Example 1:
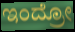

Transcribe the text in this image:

ಇಂದ್ರೋ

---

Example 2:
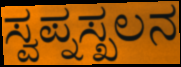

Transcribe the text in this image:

ಸ್ವಪ್ನಸ್ಖಲನ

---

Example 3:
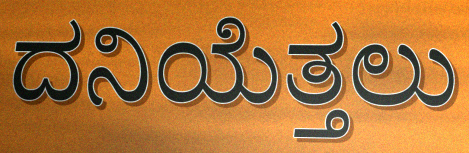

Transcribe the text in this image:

ದನಿಯೆತ್ತಲು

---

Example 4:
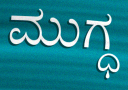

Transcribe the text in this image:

ಮುಗ್ಧ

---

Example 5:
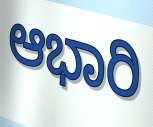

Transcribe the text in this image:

ಆಭಾರಿ